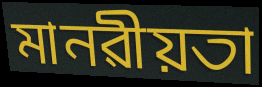
মানৱীয়তা